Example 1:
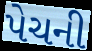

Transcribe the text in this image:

પેચની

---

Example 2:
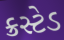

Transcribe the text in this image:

ક્રસ્ટેડ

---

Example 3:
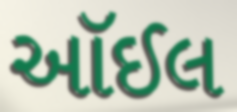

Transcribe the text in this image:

આૅઈલ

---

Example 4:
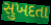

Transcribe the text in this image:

સુખદતા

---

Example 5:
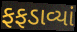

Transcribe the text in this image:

ફફડાવ્યાં